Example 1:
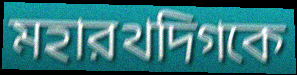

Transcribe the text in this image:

মহারথদিগকে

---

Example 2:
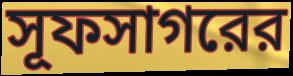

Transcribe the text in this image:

সূফসাগরের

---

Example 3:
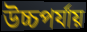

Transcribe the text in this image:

উচ্চপর্যায়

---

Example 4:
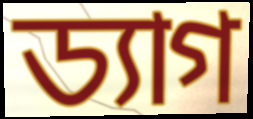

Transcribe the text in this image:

ড্যাগ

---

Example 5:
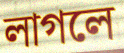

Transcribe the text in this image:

লাগলে